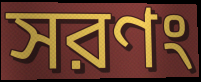
সরণং